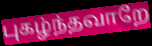
புகழ்ந்தவாறே